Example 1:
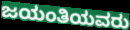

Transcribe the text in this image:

ಜಯಂತಿಯವರು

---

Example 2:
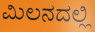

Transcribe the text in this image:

ಮಿಲನದಲ್ಲಿ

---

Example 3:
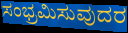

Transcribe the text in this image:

ಸಂಭ್ರಮಿಸುವುದರ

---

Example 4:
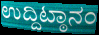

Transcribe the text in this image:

ಉದ್ದಿಟ್ಠಾನಂ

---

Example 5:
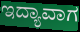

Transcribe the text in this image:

ಇದ್ಯಾವಾಗ